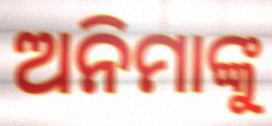
ଅନିମାଙ୍କୁ